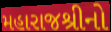
મહારાજશ્રીનો